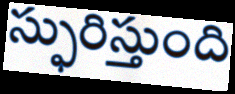
స్ఫురిస్తుంది